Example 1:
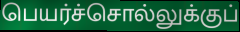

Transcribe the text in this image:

பெயர்ச்சொல்லுக்குப்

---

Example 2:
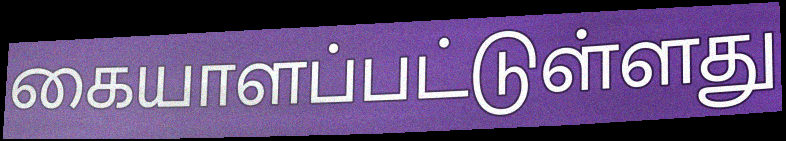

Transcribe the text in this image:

கையாளப்பட்டுள்ளது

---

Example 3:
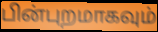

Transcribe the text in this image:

பின்புறமாகவும்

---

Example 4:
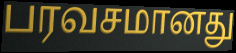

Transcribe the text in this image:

பரவசமானது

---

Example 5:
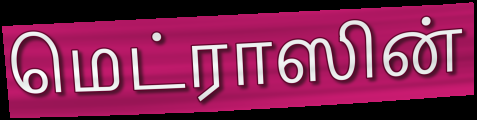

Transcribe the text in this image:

மெட்ராஸின்